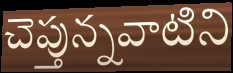
చెప్తున్నవాటిని